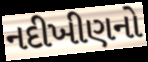
નદીખીણનો